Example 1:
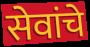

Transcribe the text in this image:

सेवांचे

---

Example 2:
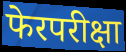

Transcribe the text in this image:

फेरपरीक्षा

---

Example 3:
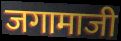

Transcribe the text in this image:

जगामाजी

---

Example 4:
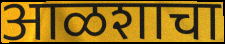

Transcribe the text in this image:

आळशाचा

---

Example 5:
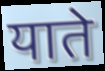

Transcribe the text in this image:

याते